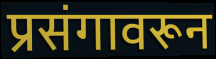
प्रसंगावरून